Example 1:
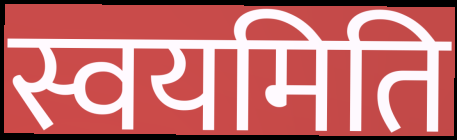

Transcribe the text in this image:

स्वयमिति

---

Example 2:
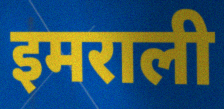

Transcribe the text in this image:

इमराली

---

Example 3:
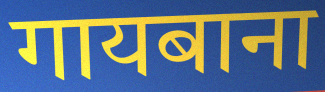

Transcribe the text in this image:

गायबाना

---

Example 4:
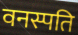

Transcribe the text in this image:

वनस्‍पति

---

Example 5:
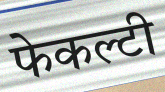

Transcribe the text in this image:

फेकल्टी